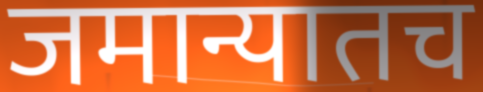
जमान्यातच